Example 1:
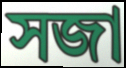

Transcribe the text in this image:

সজা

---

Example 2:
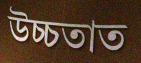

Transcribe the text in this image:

উচ্চতাত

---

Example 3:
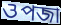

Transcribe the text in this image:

ওপজা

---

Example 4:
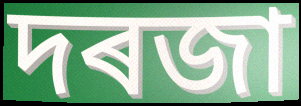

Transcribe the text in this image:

দৰজা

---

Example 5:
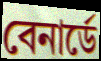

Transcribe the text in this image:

বেনাৰ্ডে